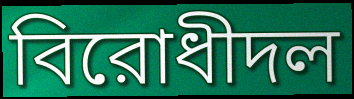
বিরোধীদল